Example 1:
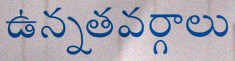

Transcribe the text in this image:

ఉన్నతవర్గాలు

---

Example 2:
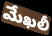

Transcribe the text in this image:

మేఖలీ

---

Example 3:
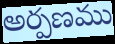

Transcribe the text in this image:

అర్పణము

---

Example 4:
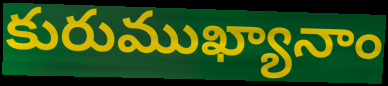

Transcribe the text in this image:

కురుముఖ్యానాం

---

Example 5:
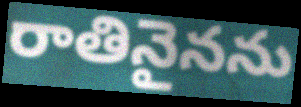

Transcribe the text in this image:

రాతినైనను